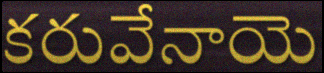
కరువేనాయె